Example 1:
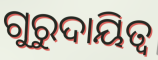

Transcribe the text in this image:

ଗୁରୁଦାୟିତ୍ୱ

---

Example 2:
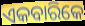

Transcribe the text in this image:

ଏକବାରିକେ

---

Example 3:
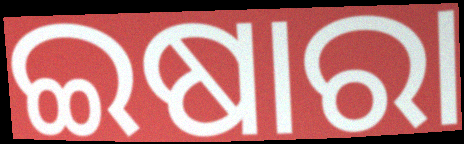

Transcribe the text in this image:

ଇଷାରା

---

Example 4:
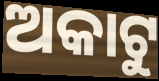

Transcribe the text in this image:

ଅକାଟୁ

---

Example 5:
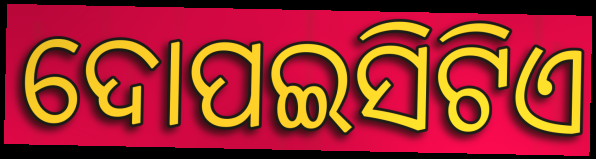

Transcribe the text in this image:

ଦୋପଇସିଟିଏ